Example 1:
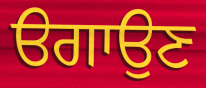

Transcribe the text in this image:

ੳਗਾਉਣ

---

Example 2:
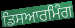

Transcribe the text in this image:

ਡਿਸਆਰਮਿੰਗ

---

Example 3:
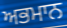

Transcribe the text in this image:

ਅਭਮਾਨ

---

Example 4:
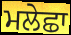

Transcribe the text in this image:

ਮਲੇਛਾ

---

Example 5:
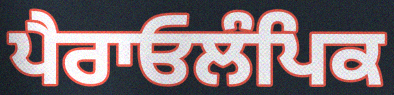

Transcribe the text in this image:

ਪੈਰਾਓਲੰਪਿਕ